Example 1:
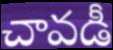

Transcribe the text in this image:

చావడీ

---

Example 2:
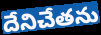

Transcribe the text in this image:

దేనిచేతను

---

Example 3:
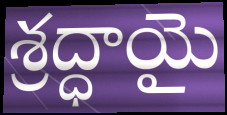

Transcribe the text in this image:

శ్రద్ధాయై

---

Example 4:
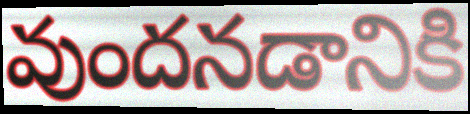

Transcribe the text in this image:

వుందనడానికి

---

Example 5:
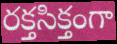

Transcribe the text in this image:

రక్తసిక్తంగా